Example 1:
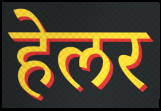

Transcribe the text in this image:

हेलर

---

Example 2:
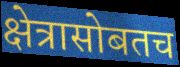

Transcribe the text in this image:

क्षेत्रासोबतच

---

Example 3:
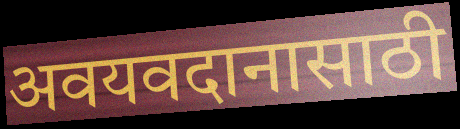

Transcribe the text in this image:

अवयवदानासाठी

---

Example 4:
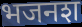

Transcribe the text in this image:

भजनश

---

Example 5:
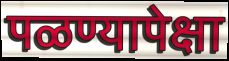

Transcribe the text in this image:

पळण्यापेक्षा